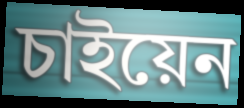
চাইয়েন